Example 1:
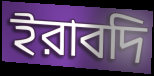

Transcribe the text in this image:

ইরাবদি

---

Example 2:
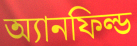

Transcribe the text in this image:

অ্যানফিল্ড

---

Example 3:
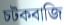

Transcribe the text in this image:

চটকবাজি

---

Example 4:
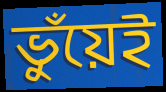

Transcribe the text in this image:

ভুঁয়েই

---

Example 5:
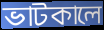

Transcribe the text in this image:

ভাটকালে